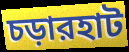
চড়ারহাট